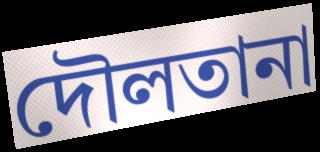
দৌলতানা